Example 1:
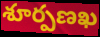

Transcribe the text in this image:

శూర్పణఖ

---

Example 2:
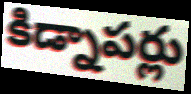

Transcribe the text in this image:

కిడ్నాపర్లు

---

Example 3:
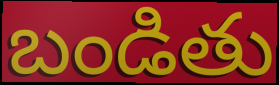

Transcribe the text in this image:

బండితు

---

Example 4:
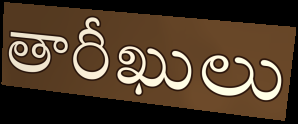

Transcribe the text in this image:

తారీఖులు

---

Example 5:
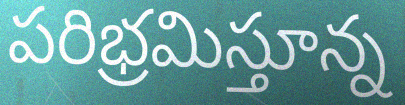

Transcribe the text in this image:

పరిభ్రమిస్తూన్న